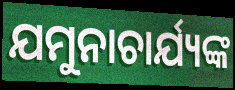
ଯମୁନାଚାର୍ଯ୍ୟଙ୍କ